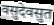
वसुदेवसुत